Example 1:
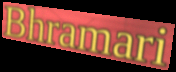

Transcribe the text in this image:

Bhramari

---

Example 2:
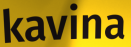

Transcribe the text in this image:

kavina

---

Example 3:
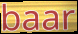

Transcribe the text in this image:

baar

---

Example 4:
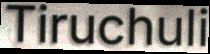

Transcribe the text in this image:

Tiruchuli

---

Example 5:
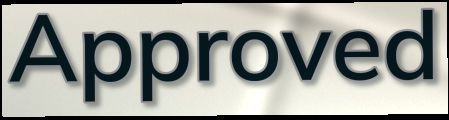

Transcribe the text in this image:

Approved